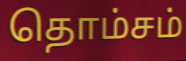
தொம்சம்